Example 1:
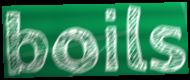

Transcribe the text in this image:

boils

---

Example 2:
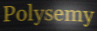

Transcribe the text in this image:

Polysemy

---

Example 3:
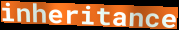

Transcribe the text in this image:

inheritance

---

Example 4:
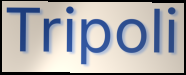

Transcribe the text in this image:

Tripoli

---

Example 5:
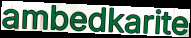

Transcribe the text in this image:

ambedkarite